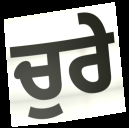
ਚੁਰੇ